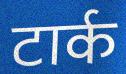
टार्क